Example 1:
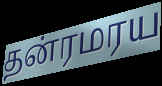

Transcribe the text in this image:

தன்ரமரய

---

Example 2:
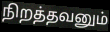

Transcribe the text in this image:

நிறத்தவனும்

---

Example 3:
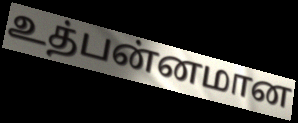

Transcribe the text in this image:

உத்பன்னமான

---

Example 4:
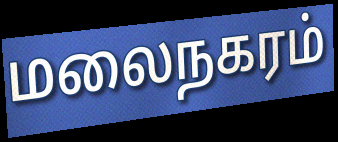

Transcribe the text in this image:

மலைநகரம்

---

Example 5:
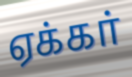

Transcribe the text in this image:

ஏக்கர்